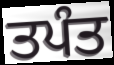
ਤਪੰਤ